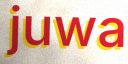
juwa